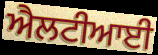
ਐਲਟੀਆਈ